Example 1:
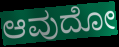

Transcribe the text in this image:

ಆವುದೋ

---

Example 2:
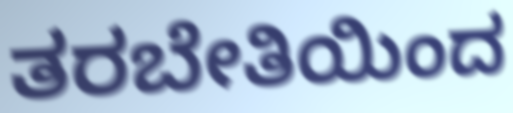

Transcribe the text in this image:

ತರಬೇತಿಯಿಂದ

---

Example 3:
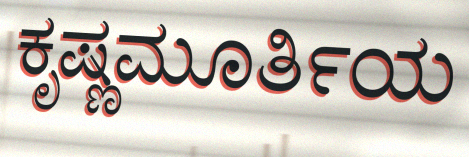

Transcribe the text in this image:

ಕೃಷ್ಣಮೂರ್ತಿಯ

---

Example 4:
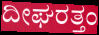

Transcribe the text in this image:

ದೀಘರತ್ತಂ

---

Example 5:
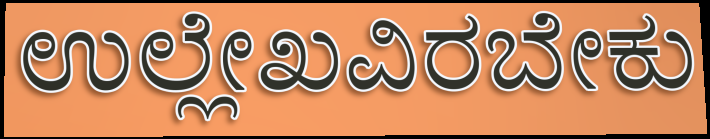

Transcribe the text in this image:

ಉಲ್ಲೇಖವಿರಬೇಕು